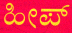
ಹೀಪ್